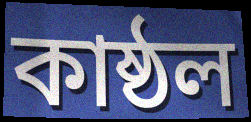
কাষ্ঠল